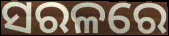
ସରଳରେ